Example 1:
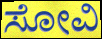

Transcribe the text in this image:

ಸೋವಿ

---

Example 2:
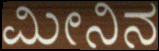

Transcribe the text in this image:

ಮೀನಿನ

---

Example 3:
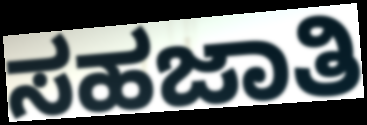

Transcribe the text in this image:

ಸಹಜಾತಿ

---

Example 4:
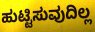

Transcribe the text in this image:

ಹುಟ್ಟಿಸುವುದಿಲ್ಲ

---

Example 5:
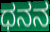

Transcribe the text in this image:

ಧನನ